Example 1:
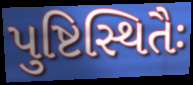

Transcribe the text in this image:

પુષ્ટિસ્થિતૈઃ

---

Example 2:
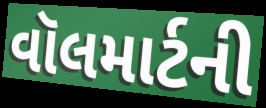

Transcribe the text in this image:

વૉલમાર્ટની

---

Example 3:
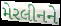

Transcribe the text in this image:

મેરલીનને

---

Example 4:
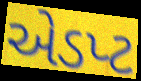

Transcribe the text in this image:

એડપ્ટ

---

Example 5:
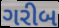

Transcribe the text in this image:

ગરીબ